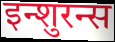
इन्शुरन्स